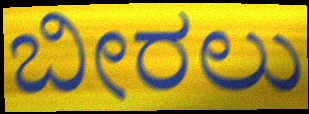
ಬೀರಲು